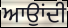
ਆਉਾਂਦੀ